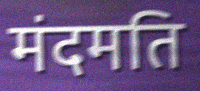
मंदमति